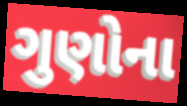
ગુણોના